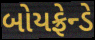
બોયફ્રેન્ડે